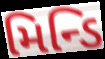
મિન્ડિ